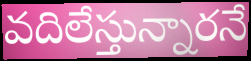
వదిలేస్తున్నారనే